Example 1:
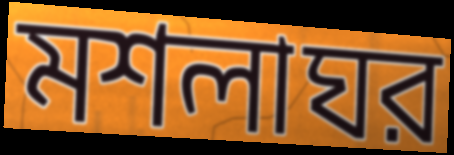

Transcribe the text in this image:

মশলাঘর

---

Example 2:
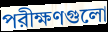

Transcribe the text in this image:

পরীক্ষণগুলো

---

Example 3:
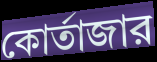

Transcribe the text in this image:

কোর্তাজার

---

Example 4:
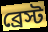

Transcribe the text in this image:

ব্রেস্ট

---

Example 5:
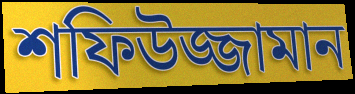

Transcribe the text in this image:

শফিউজ্জামান